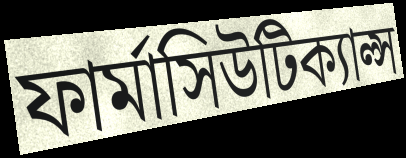
ফার্মাসিউটিক্যাল্স